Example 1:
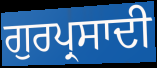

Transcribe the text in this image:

ਗੁਰਪ੍ਰਸਾਦੀ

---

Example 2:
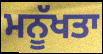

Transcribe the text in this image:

ਮਨੂੱਖਤਾ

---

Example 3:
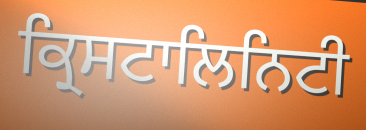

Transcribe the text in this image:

ਕ੍ਰਿਸਟਾਲਿਨਿਟੀ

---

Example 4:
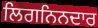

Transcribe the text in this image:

ਲਿਗਨਿਨਦਾਰ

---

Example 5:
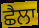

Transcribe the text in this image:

ਛੈਲਾ